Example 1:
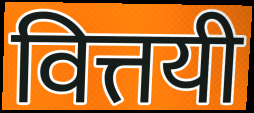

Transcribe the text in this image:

वित्तयी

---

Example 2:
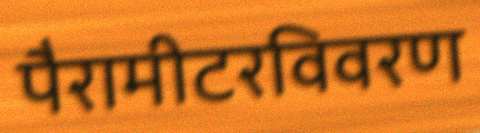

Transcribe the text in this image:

पैरामीटरविवरण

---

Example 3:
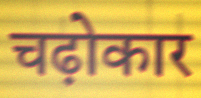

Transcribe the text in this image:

चढ़ोकार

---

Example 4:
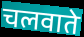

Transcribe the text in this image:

चलवाते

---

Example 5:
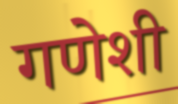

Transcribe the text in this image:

गणेशी